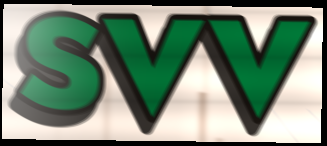
svv